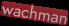
wachman